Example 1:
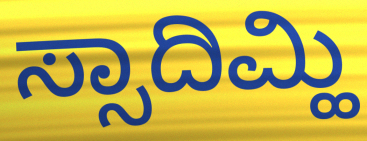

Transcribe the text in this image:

ಸ್ಸಾದಿಮ್ಹಿ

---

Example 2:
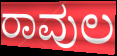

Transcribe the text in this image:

ರಾವುಲ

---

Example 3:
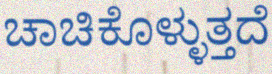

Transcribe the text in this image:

ಚಾಚಿಕೊಳ್ಳುತ್ತದೆ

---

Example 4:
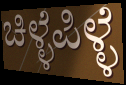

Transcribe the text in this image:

ಚಿಳ್ಳೆಪಿಳ್ಳೆ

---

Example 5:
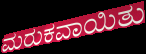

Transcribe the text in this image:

ಮರುಕವಾಯಿತು